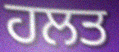
ਹਲਤ